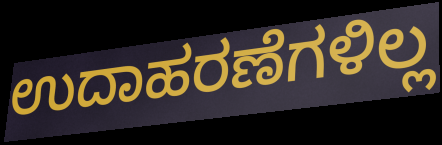
ಉದಾಹರಣೆಗಳಿಲ್ಲ